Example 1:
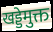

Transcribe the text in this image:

खड्डेमुक्त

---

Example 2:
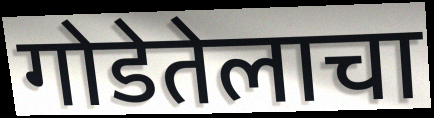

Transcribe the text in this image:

गोडेतेलाचा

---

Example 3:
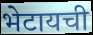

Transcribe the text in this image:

भेटायची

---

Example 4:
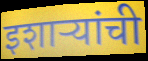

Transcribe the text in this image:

इशाऱ्यांची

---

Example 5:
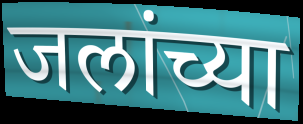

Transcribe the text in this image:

जलांच्या